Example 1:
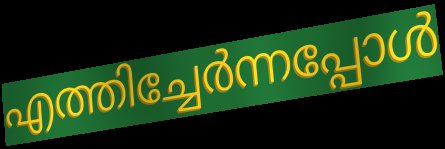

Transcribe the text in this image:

എത്തിച്ചേർന്നപ്പോൾ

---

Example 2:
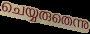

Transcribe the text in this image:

ചെയ്യരുതെന്നു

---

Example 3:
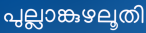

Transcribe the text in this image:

പുല്ലാങ്കുഴലൂതി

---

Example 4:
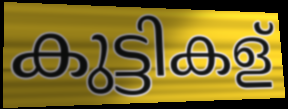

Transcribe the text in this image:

കുട്ടികള്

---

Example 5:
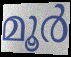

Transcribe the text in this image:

മൂർ